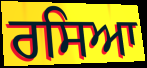
ਰਸਿਆ